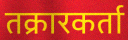
तक्रारकर्ता